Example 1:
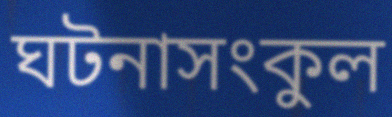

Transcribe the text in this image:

ঘটনাসংকুল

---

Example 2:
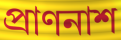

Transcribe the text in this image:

প্রাণনাশ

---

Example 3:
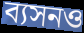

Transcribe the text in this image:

ব্যসনও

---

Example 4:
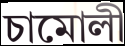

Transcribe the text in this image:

চামোলী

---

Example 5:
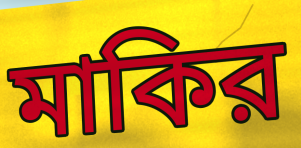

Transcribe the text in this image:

মাকির